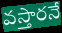
వస్తారనే